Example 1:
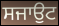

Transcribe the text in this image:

ਸਜਾਉਟ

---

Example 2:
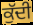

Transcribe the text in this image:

ਕੁੱਦੀ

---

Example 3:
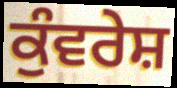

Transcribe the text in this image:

ਕੁੰਵਰੇਸ਼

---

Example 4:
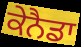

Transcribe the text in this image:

ਕੇਨੈਡਾ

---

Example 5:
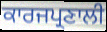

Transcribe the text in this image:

ਕਾਰਜਪ੍ਰਣਾਲੀ